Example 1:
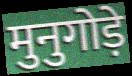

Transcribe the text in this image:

मुनुगोड़े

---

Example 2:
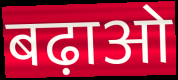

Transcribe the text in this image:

बढ़ाओ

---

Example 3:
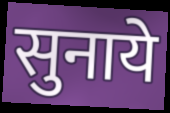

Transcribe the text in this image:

सुनाये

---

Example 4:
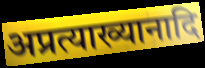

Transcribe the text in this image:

अप्रत्याख्यानादि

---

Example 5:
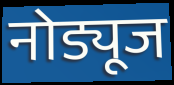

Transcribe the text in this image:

नोड्यूज